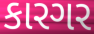
કારગર